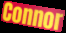
Connor